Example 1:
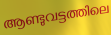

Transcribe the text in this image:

ആണ്ടുവട്ടത്തിലെ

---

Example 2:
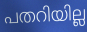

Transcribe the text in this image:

പതറിയില്ല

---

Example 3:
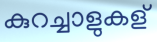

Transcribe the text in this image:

കുറച്ചാളുകള്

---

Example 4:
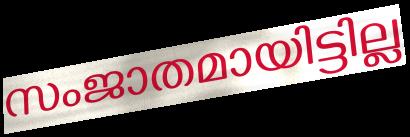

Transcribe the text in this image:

സംജാതമായിട്ടില്ല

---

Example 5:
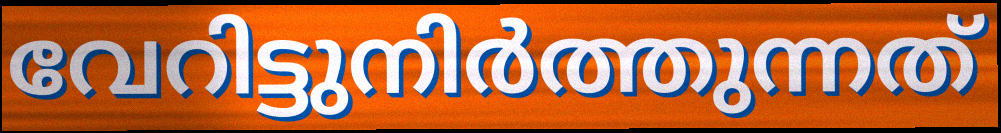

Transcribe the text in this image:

വേറിട്ടുനിർത്തുന്നത്